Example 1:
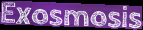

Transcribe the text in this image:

Exosmosis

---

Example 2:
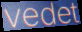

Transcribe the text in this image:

vedet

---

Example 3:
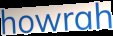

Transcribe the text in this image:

howrah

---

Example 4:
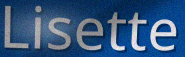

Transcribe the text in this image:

Lisette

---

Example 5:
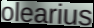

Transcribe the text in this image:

olearius